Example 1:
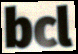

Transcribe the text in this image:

bcl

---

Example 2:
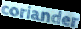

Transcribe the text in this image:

coriander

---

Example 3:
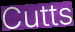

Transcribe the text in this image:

Cutts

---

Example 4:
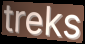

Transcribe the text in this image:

treks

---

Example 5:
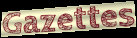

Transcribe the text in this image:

Gazettes